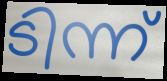
ടിന്ന്